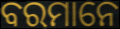
ବରମାନେ